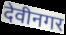
देवीनगर